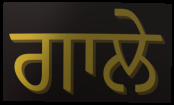
ਗਾਲੇ